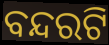
ବନ୍ଦରଟି